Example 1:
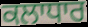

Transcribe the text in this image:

ਕਲਾਧਾਰ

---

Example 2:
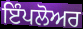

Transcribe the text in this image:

ਇੰਪਲੋਅਰ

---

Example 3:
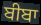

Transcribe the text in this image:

ਬੀਬਾ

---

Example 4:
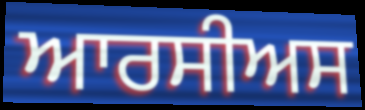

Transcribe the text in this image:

ਆਰਸੀਅਸ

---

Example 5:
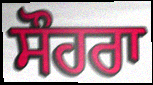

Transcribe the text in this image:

ਸੌਹਰਾ